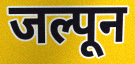
जल्पून